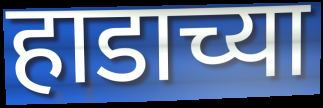
हाडाच्या